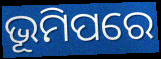
ଭୂମିପରେ